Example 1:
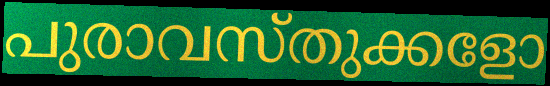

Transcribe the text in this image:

പുരാവസ്തുക്കളോ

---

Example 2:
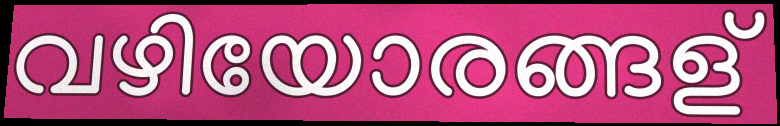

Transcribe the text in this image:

വഴിയോരങ്ങള്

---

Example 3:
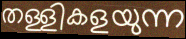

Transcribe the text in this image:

തള്ളികളയുന്ന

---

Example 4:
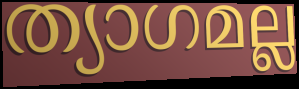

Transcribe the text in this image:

ത്യാഗമല്ല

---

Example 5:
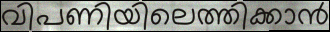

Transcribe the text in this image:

വിപണിയിലെത്തിക്കാൻ